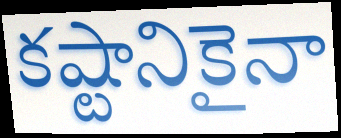
కష్టానికైనా